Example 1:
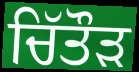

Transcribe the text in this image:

ਚਿੱਤੌੜ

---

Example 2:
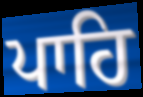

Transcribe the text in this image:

ਪਾਹਿ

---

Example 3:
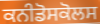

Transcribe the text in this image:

ਕਨੀਡੋਸਕੋਲਸ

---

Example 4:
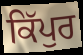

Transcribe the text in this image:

ਕਿੱਪੁਰ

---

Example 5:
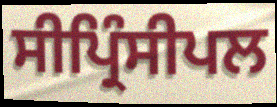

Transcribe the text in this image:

ਸੀਪ੍ਰਿੰਸੀਪਲ